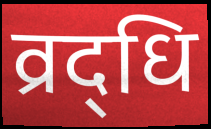
व्रद्धि